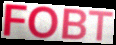
FOBT